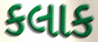
કલાક